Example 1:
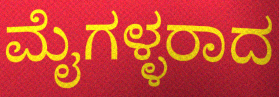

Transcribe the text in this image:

ಮೈಗಳ್ಳರಾದ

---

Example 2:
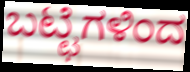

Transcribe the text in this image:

ಬಟ್ಟೆಗಳಿಂದ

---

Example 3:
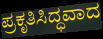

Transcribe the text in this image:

ಪ್ರಕೃತಿಸಿದ್ಧವಾದ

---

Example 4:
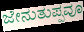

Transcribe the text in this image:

ಜೇನುತುಪ್ಪವೂ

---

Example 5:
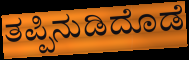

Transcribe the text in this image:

ತಪ್ಪಿನುಡಿದೊಡೆ